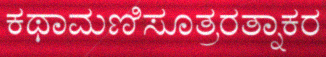
ಕಥಾಮಣಿಸೂತ್ರರತ್ನಾಕರ